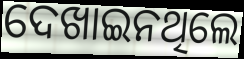
ଦେଖାଇନଥିଲେ